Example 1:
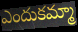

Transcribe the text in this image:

ఎందుకమ్మా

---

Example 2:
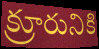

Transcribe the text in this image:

క్రూరునికి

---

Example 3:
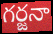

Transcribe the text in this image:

గర్జనా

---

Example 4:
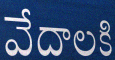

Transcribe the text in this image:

వేదాలకి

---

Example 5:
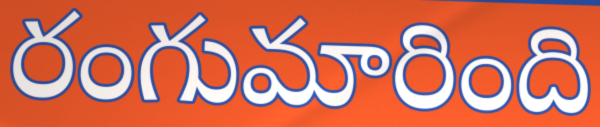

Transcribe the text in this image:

రంగుమారింది